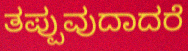
ತಪ್ಪುವುದಾದರೆ